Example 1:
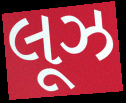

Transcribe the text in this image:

લૂઝ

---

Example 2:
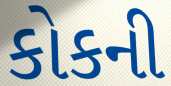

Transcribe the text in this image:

કોકની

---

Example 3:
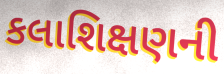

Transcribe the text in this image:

કલાશિક્ષણની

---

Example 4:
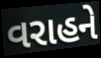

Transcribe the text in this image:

વરાહને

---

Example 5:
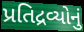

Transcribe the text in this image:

પ્રતિદ્રવ્યોનું